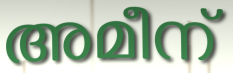
അമീന്